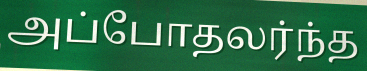
அப்போதலர்ந்த